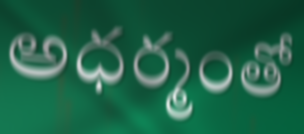
అధర్మంతో